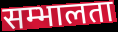
सम्भालता